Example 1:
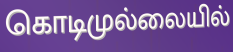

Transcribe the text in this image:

கொடிமுல்லையில்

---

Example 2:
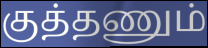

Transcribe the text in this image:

குத்தணும்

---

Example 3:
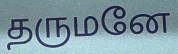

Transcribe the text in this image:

தருமனே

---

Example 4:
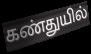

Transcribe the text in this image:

கண்துயில்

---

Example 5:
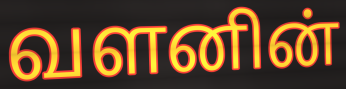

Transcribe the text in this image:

வளனின்